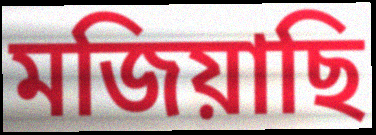
মজিয়াছি